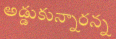
అడ్డుకున్నారన్న